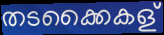
തടക്കൈകള്